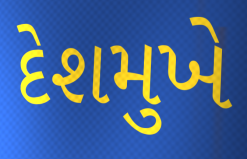
દેશમુખે